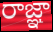
రాజ్ఞా